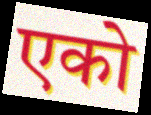
एको